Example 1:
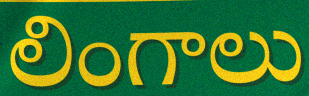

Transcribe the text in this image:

లింగాలు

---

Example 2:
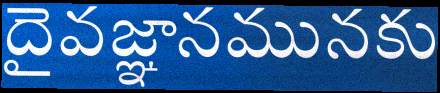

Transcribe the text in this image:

దైవజ్ఞానమునకు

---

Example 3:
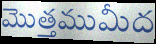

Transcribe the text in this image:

మొత్తముమీద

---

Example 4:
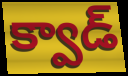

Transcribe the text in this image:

క్వాడ్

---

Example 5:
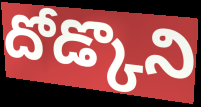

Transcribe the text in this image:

దోడ్కొని